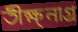
তীক্ষ্নাগ্র